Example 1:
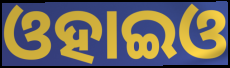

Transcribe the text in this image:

ଓହାଇଓ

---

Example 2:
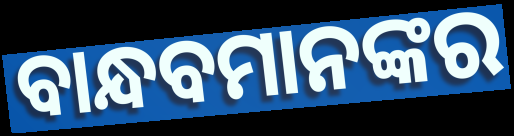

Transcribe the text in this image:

ବାନ୍ଧବମାନଙ୍କର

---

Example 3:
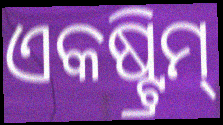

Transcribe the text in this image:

ଏକଷ୍ଟ୍ରିମ୍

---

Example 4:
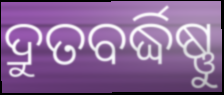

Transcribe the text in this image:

ଦ୍ରୁତବର୍ଦ୍ଧିଷ୍ଣୁ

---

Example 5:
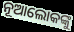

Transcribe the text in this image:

ନୂଆଲୋକଙ୍କୁ